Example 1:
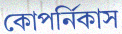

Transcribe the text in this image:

কোপর্নিকাস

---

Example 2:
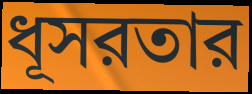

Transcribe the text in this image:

ধূসরতার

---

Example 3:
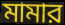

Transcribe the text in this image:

মামার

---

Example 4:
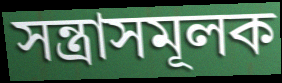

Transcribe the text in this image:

সন্ত্রাসমূলক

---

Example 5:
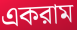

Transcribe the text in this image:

একরাম